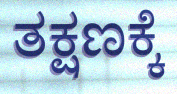
ತಕ್ಷಣಕ್ಕೆ